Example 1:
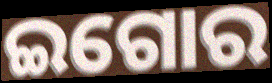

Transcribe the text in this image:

ଇଗୋର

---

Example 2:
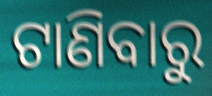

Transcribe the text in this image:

ଟାଣିବାରୁ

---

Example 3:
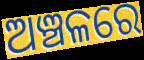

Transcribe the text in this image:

ଅଞ୍ଚଳରେ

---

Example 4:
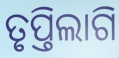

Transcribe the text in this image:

ତୃପ୍ତିଲାଗି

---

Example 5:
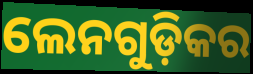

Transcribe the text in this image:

ଲେନଗୁଡ଼ିକର